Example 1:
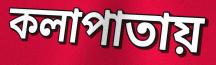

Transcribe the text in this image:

কলাপাতায়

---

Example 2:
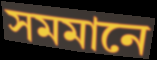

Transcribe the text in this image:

সমমানে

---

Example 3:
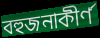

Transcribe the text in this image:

বহুজনাকীর্ণ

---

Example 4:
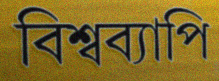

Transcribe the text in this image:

বিশ্বব্যাপি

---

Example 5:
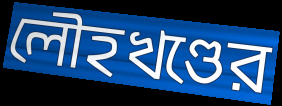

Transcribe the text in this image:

লৌহখণ্ডের